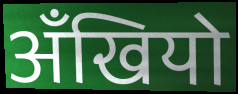
अँखियो